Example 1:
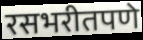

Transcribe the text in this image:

रसभरीतपणे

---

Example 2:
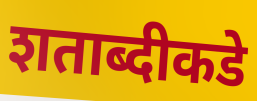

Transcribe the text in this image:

शताब्दीकडे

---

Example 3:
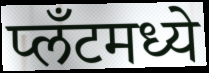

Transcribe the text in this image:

प्लँटमध्ये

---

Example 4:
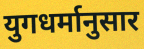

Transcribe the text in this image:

युगधर्मानुसार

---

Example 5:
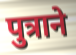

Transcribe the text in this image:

पुत्राने